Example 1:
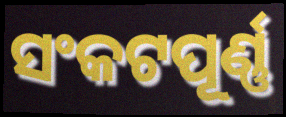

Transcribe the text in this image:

ସଂକଟପୂର୍ଣ୍ଣ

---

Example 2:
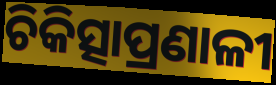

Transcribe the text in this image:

ଚିକିତ୍ସାପ୍ରଣାଳୀ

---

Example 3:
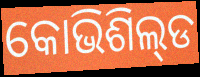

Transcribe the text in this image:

କୋଭିଶିଲ୍‌ଡ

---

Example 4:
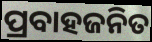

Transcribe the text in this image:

ପ୍ରବାହଜନିତ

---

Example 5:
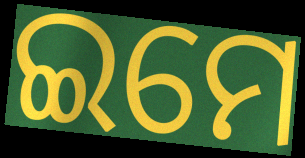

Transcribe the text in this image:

ଇମେ